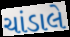
ચાંડાલે